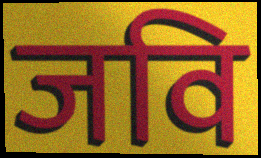
जवि